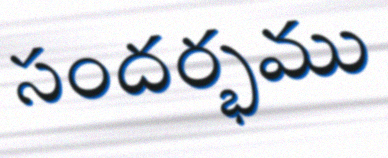
సందర్భము